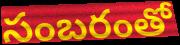
సంబరంతో